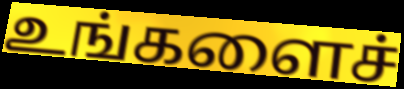
உங்களைச்